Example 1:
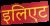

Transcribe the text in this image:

इलिएट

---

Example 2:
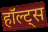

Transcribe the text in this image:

हॉल्ट्स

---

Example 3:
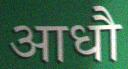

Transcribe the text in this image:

आधौ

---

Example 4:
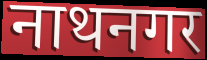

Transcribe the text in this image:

नाथनगर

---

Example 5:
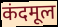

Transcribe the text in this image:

कंदमूल